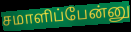
சமாளிப்பேன்னு